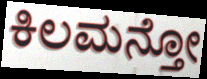
ಕಿಲಮನ್ತೋ